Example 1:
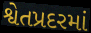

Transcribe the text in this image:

શ્વેતપ્રદરમાં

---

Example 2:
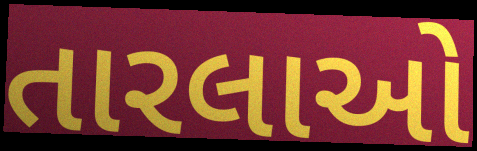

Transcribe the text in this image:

તારલાઓ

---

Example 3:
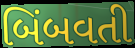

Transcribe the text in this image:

બિંબવતી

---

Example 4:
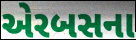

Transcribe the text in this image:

એરબસના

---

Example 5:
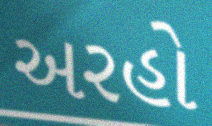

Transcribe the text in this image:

અરહો